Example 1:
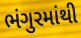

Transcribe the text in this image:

ભંગુરમાંથી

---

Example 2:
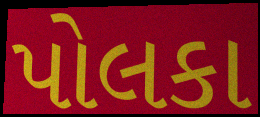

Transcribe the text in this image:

પોલકા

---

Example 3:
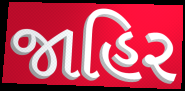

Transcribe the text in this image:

જાહિર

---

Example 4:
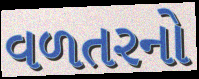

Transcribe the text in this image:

વળતરનો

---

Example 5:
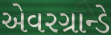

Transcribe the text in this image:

એવરગ્રાન્ડે